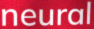
neural